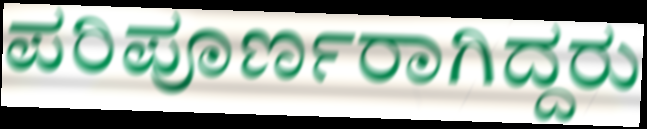
ಪರಿಪೂರ್ಣರಾಗಿದ್ದರು